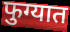
फुग्यात